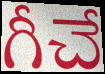
గీచే